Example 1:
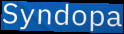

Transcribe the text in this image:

Syndopa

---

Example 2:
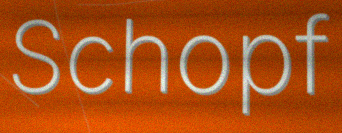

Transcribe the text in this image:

Schopf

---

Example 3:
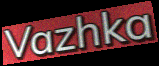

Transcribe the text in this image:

Vazhka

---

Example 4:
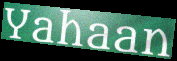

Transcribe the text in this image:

Yahaan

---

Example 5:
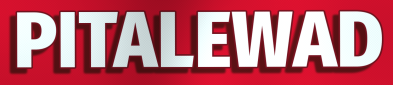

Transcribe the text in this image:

PITALEWAD